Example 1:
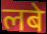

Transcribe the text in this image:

लबे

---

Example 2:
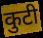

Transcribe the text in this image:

कुटी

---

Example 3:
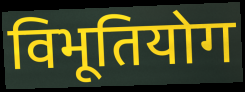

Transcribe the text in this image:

विभूतियोग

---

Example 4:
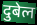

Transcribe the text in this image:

दुबेल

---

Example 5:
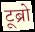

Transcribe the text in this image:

टूब्रो